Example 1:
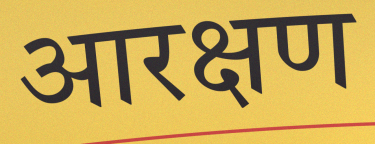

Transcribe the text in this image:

आरक्षण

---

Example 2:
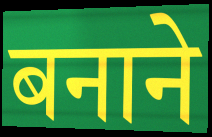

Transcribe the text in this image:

बनाने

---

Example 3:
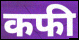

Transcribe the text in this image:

कफी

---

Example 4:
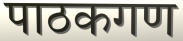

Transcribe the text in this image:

पाठकगण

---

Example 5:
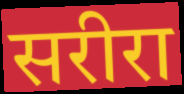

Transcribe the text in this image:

सरीरा